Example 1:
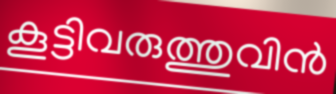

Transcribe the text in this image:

കൂട്ടിവരുത്തുവിൻ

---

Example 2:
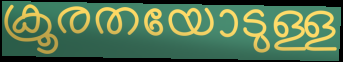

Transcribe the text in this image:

ക്രൂരതയോടുള്ള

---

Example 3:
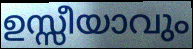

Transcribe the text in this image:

ഉസ്സീയാവും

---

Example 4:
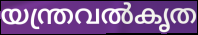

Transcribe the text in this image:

യന്ത്രവൽകൃത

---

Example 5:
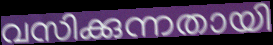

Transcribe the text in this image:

വസിക്കുന്നതായി